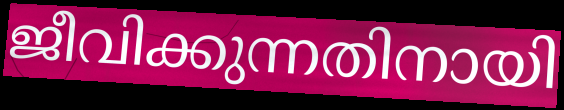
ജീവിക്കുന്നതിനായി